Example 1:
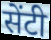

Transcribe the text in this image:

सेंटी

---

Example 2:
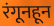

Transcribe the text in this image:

रंगूनहून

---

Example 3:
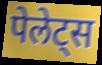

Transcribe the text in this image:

पेलेट्स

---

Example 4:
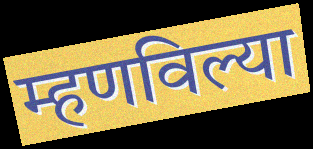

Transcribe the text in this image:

म्हणविल्या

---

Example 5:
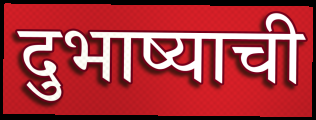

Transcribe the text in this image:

दुभाष्याची